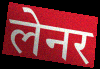
लेनर